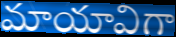
మాయావిగా